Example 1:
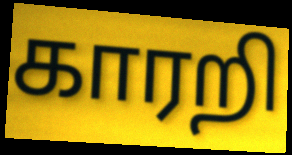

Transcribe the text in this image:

காரறி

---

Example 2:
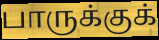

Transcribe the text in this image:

பாருக்குக்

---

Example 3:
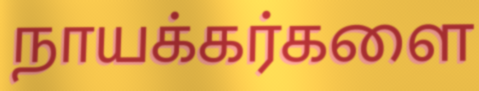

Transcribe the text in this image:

நாயக்கர்களை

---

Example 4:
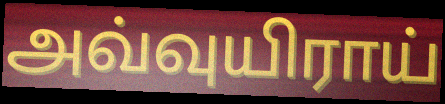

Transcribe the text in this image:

அவ்வுயிராய்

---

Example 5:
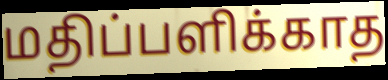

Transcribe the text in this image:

மதிப்பளிக்காத